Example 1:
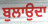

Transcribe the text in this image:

ਬੁਲਾਉਦਾ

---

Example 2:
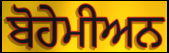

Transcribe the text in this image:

ਬੋਹੇਮੀਅਨ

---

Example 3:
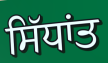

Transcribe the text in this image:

ਸਿੱਧਾਂਤ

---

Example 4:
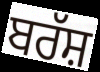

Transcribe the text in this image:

ਬਰੱਸ਼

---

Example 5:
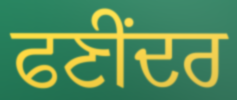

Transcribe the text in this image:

ਫਣੀਂਦਰ